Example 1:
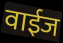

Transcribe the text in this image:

वाईज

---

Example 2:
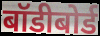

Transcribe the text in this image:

बॉडीबोर्ड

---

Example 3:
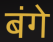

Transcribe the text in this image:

बंगे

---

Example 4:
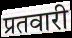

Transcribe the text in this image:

प्रतवारी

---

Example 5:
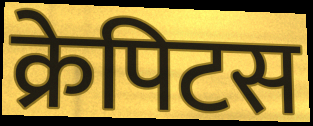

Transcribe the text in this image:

क्रेपिटस